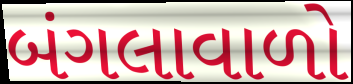
બંગલાવાળો